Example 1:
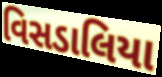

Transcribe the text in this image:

વિસડાલિયા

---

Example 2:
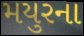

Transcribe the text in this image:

મયુરના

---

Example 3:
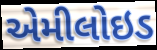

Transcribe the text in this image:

એમીલોઇડ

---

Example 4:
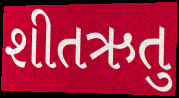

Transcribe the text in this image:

શીતઋતુ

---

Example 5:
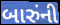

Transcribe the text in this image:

બારુંની